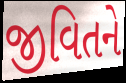
જીવિતને